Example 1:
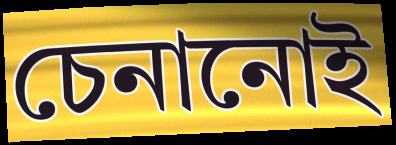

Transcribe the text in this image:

চেনানোই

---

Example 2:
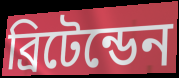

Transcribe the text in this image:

ব্রিটেন্ডেন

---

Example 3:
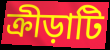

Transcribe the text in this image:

ক্রীড়াটি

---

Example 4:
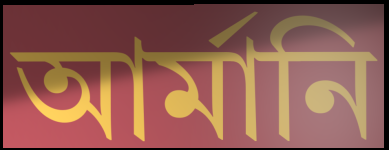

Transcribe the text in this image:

আর্মানি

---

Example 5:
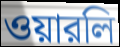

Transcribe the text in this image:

ওয়ারলি